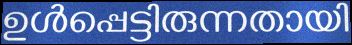
ഉൾപ്പെട്ടിരുന്നതായി